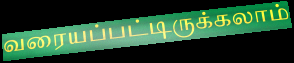
வரையப்பட்டிருக்கலாம்